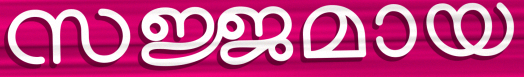
സജ്ജമായ